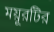
ময়ূরটির